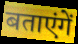
बताएंगें